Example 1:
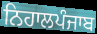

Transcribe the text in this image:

ਨਿਹਾਲਪੰਜਾਬ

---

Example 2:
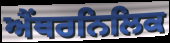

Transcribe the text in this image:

ਐਂਥਰਨਿਲਿਕ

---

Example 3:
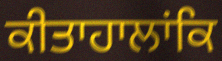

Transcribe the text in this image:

ਕੀਤਾਹਾਲਾਂਕਿ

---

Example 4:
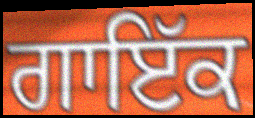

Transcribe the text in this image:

ਗਾਇੱਕ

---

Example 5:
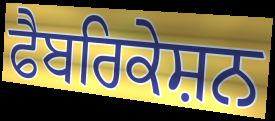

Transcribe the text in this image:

ਫੈਬਰਿਕੇਸ਼ਨ